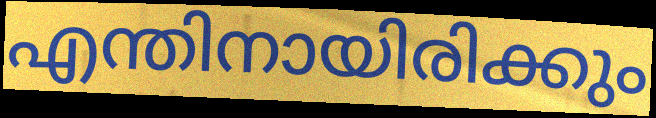
എന്തിനായിരിക്കും